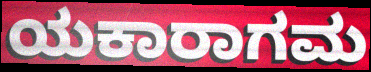
ಯಕಾರಾಗಮ